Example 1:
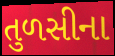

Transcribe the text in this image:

તુળસીના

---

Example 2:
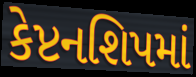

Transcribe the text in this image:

કેપ્ટનશિપમાં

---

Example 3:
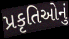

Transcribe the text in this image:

પ્રકૃતિઓનું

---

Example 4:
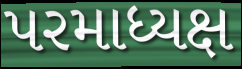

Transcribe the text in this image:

પરમાધ્યક્ષ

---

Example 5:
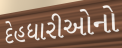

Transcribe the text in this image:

દેહધારીઓનો